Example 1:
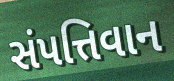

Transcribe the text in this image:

સંપત્તિવાન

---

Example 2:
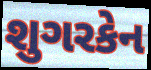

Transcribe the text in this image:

શુગરકેન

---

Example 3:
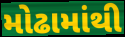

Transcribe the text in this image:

મોઢામાંથી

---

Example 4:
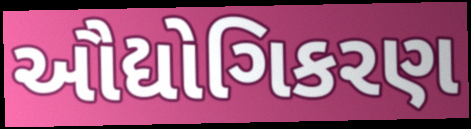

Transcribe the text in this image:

ઔદ્યોગિકરણ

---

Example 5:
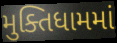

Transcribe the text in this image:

મુક્તિધામમાં